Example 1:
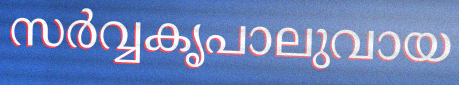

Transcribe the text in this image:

സർവ്വകൃപാലുവായ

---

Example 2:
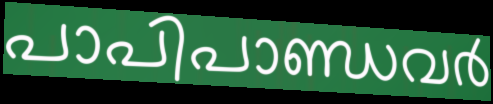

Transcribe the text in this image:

പാപിപാണ്ഡവർ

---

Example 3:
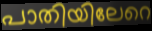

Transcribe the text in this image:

പാതിയിലേറെ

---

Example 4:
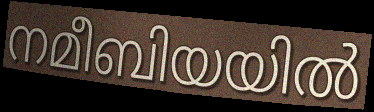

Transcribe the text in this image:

നമീബിയയിൽ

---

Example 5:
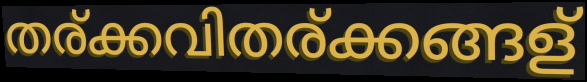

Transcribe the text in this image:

തര്ക്കവിതര്ക്കങ്ങള്